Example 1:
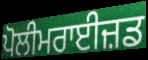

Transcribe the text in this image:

ਪੋਲੀਮਰਾਈਜ਼ਡ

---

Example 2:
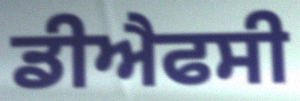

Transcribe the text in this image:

ਡੀਐਫਸੀ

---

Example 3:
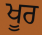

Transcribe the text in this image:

ਖੂਰ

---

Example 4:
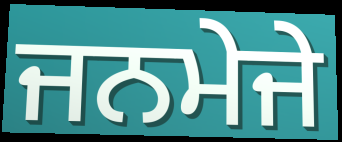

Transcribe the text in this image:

ਜਨਮੇਜੇ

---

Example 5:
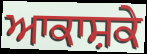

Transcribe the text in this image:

ਆਕਾਸ਼ਕੇ